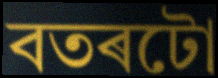
বতৰটো